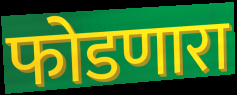
फोडणारा